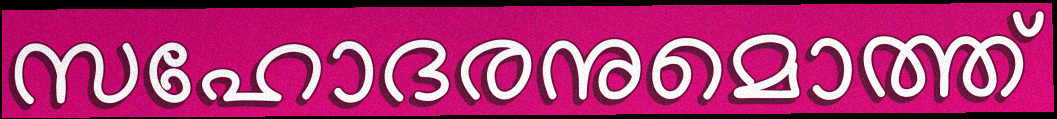
സഹോദരനുമൊത്ത്